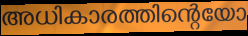
അധികാരത്തിന്റെയോ